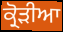
ਕ੍ਰੋੜੀਆ